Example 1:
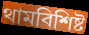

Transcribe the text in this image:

থামবিশিষ্ট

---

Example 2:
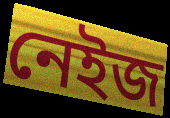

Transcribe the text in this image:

নেইজ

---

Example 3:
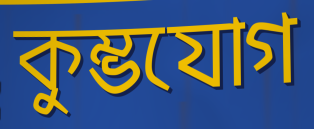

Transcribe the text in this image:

কুম্ভযোগ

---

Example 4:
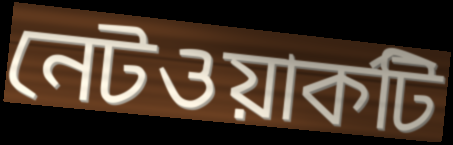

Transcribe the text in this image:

নেটওয়ার্কটি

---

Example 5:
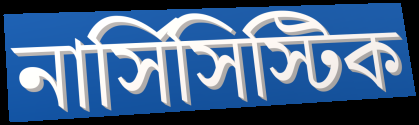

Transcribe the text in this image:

নার্সিসিস্টিক